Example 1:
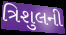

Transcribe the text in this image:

ત્રિશુલની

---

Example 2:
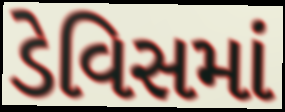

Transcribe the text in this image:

ડેવિસમાં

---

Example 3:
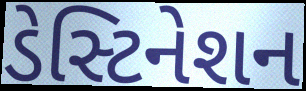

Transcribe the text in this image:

ડેસ્ટિનેશન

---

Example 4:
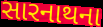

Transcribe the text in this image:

સારનાથના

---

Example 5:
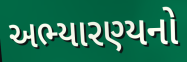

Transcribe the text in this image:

અભ્યારણ્યનો